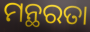
ମନ୍ଥରତା